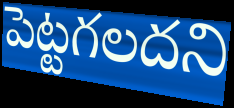
పెట్టగలదని